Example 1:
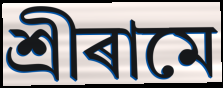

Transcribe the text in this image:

শ্ৰীৰামে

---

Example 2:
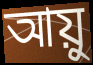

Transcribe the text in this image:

আয়ু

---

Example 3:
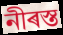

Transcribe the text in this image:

নীৰস্ত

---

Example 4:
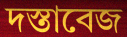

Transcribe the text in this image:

দস্তাবেজ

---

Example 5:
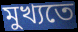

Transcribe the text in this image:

মুখ্যতে